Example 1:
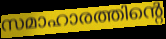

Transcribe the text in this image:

സമാഹാരത്തിന്റെ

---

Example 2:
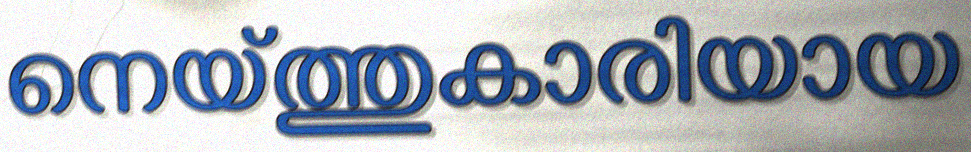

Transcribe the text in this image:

നെയ്ത്തുകാരിയായ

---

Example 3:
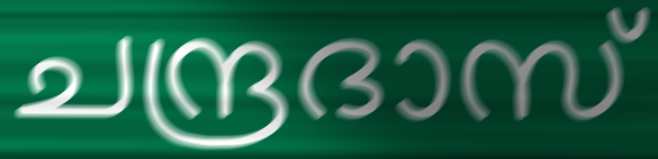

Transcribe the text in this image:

ചന്ദ്രദാസ്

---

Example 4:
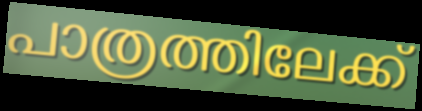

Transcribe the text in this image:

പാത്രത്തിലേക്ക്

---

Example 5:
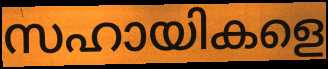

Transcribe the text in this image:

സഹായികളെ